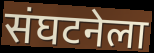
संघटनेला